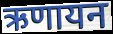
ऋणायन